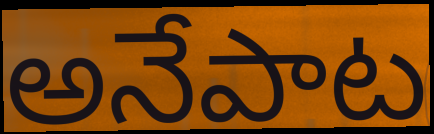
అనేపాట